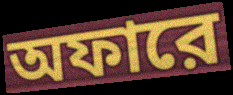
অফারে